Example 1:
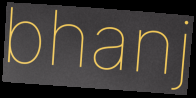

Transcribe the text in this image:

bhanj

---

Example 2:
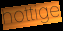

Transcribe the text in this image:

hottige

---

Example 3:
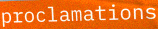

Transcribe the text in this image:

proclamations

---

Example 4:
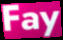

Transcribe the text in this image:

Fay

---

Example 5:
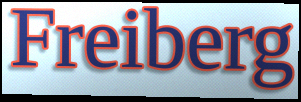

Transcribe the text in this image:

Freiberg